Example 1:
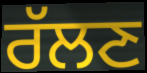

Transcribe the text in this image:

ਰੱਲਣ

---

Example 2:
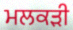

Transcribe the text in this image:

ਮਲਕੜੀ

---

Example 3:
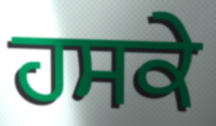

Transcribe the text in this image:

ਹਸਕੇ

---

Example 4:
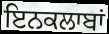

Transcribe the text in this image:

ਇਨਕਲਾਬਾਂ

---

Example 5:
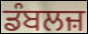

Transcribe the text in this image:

ਡੰਬਲਜ਼